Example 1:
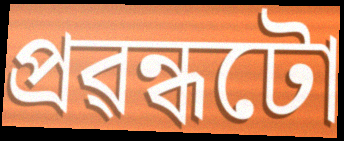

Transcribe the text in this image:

প্ৰৱন্ধটো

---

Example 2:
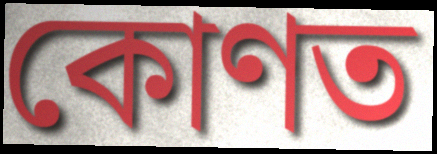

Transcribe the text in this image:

কোণত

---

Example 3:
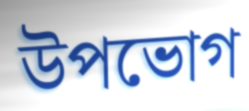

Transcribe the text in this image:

উপভোগ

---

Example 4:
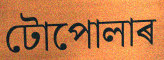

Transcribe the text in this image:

টোপোলাৰ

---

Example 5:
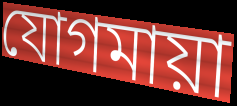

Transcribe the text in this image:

যোগমায়া